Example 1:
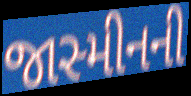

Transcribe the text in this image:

જાસ્મીનની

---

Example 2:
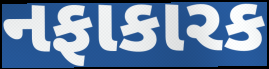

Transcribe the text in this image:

નફાકારક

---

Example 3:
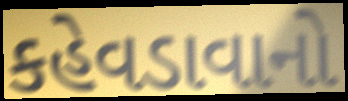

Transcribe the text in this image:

કહેવડાવાનો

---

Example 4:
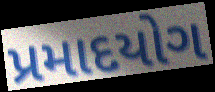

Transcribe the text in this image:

પ્રમાદયોગ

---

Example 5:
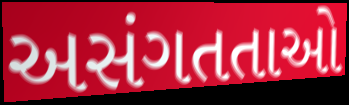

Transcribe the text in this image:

અસંગતતાઓ